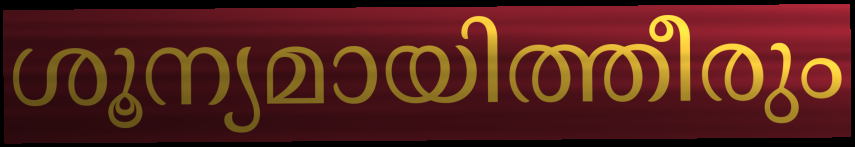
ശൂന്യമായിത്തീരും